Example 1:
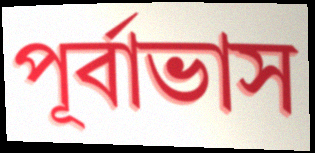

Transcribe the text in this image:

পূৰ্বাভাস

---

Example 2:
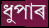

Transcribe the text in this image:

ধুপাৰ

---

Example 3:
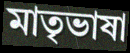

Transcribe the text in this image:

মাতৃভাষা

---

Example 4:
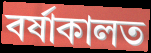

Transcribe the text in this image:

বৰ্ষাকালত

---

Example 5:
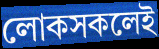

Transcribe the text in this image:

লোকসকলেই